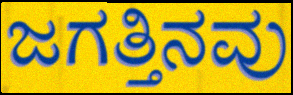
ಜಗತ್ತಿನವು